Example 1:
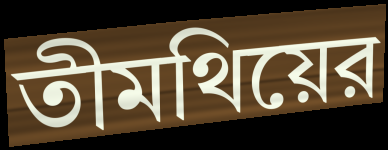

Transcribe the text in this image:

তীমথিয়ের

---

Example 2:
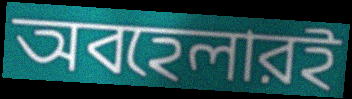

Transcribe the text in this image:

অবহেলারই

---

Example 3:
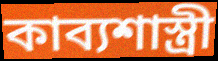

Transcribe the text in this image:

কাব্যশাস্ত্রী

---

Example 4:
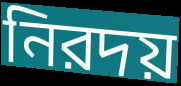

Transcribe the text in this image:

নিরদয়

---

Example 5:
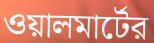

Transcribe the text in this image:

ওয়ালমার্টের